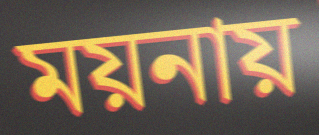
ময়নায়